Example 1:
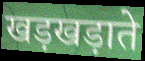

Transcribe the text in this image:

खड़खड़ाते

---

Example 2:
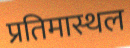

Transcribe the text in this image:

प्रतिमास्थल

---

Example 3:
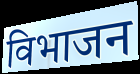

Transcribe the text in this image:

विभाजन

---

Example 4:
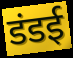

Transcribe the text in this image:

डंडई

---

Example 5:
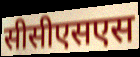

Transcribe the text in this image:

सीसीएसएस